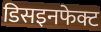
डिसइनफेक्ट